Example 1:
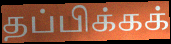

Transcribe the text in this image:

தப்பிக்கக்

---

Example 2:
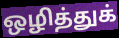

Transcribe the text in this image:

ஒழித்துக்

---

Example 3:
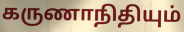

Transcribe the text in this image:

கருணாநிதியும்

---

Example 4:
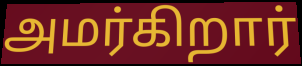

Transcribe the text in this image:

அமர்கிறார்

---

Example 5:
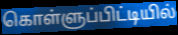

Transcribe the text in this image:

கொள்ளுப்பிட்டியில்